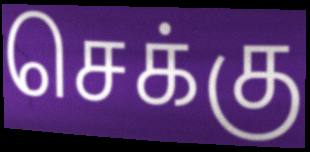
செக்கு